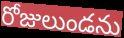
రోజులుండను